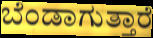
ಬೆಂಡಾಗುತ್ತಾರೆ